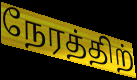
நேரத்திற்